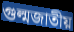
গুল্মজাতীয়